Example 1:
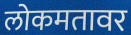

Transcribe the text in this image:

लोकमतावर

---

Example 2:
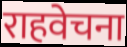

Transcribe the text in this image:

राहवेचना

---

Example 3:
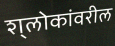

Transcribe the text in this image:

श्लोकांवरील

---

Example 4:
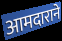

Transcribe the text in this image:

आमदाराने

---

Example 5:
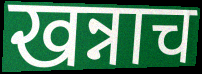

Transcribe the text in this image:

खन्नाच